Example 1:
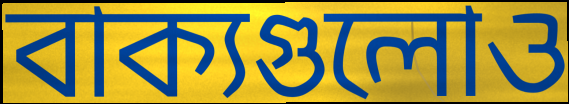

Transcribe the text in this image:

বাক্যগুলোও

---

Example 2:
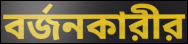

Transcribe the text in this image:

বর্জনকারীর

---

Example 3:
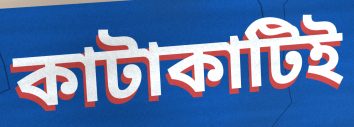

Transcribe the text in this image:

কাটাকাটিই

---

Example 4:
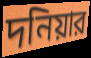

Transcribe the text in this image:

দনিয়ার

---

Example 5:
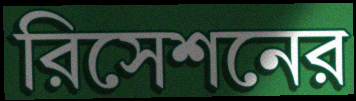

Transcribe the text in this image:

রিসেশনের